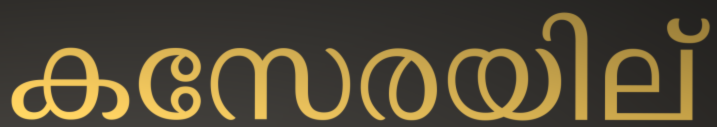
കസേരയില്